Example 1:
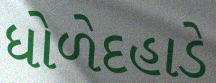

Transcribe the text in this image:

ધોળેદહાડે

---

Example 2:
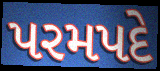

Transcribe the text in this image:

પરમપદે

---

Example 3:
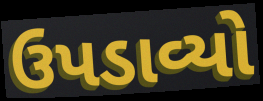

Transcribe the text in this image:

ઉપડાવ્યો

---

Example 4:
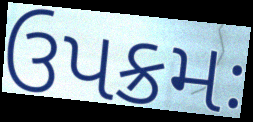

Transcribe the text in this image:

ઉપક્રમઃ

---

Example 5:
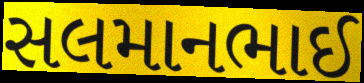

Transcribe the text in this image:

સલમાનભાઈ